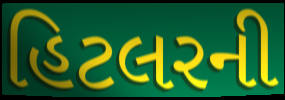
હિટલરની